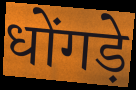
धोंगड़े